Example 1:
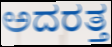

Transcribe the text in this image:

ಅದರತ್ತ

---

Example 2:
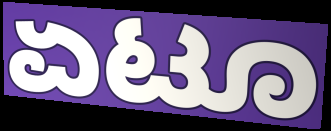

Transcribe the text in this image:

ಏಟೂ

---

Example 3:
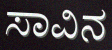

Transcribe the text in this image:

ಸಾವಿನ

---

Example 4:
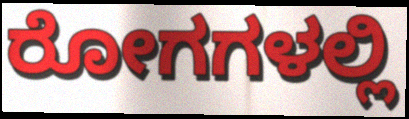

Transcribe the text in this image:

ರೋಗಗಳಲ್ಲಿ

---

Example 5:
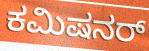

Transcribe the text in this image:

ಕಮಿಷನರ್